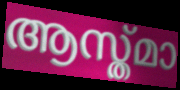
ആസ്ത്മാ